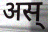
अस्